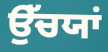
ਉੱਚਯਾਂ